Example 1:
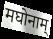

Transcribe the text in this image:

मघोनाम्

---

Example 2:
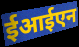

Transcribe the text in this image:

ईआईएन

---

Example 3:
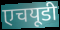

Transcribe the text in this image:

एचयूडी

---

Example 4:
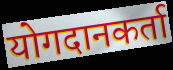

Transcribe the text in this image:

योगदानकर्ता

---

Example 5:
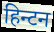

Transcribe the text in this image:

हिन्टन